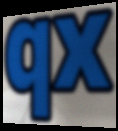
qx